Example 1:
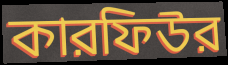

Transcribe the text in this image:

কারফিউর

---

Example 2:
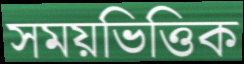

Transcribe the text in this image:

সময়ভিত্তিক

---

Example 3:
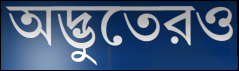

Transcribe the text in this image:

অদ্ভুতেরও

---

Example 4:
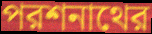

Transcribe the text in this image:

পরশনাথের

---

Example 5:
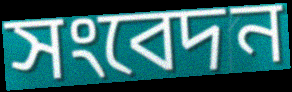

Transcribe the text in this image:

সংবেদন